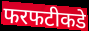
फरफटीकडे